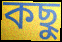
কছু